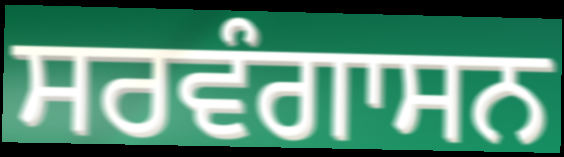
ਸਰਵੰਗਾਸਨ